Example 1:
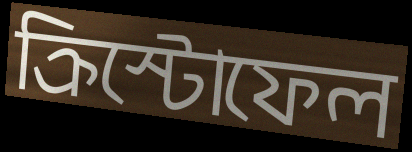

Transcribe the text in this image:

ক্রিস্টোফেল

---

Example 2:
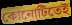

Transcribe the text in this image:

কোনোটিতেই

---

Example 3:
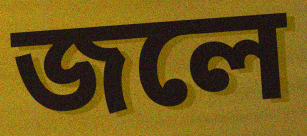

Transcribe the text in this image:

জলে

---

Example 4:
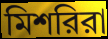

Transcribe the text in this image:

মিশরিরা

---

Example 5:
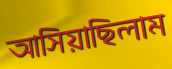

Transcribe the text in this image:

আসিয়াছিলাম